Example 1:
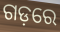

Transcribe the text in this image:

ଗଡ଼ରେ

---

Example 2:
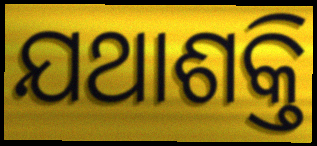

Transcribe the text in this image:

ଯଥାଶକ୍ତି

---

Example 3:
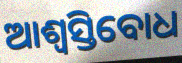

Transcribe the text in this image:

ଆଶ୍ଵସ୍ତିବୋଧ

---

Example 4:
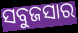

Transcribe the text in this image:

ସବୁଜସାର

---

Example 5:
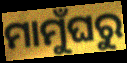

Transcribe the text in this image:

ମାମୁଁଘରୁ